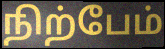
நிற்பேம்